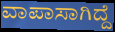
ವಾಪಾಸಾಗಿದ್ದೆ